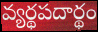
వ్యర్థపదార్థం